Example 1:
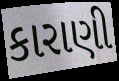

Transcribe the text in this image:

કારાણી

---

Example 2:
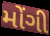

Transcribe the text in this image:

મોંગી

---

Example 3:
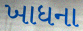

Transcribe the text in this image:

ખાધના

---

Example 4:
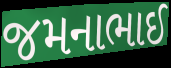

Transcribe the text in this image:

જમનાભાઈ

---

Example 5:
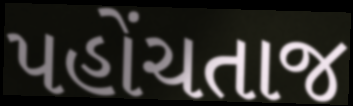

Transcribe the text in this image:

પહોંચતાજ